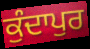
ਕੁੰਦਾਪੁਰ